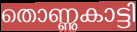
തൊണ്ണുകാട്ടി